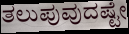
ತಲುಪುವುದಷ್ಟೇ